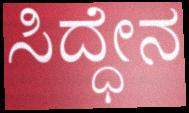
ಸಿದ್ಧೇನ